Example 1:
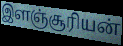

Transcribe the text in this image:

இளஞ்சூரியன்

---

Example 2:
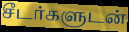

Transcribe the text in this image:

சீடர்களுடன்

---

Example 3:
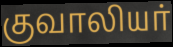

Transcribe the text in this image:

குவாலியர்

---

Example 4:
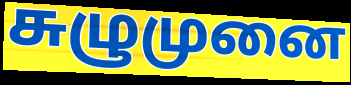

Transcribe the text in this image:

சுழுமுனை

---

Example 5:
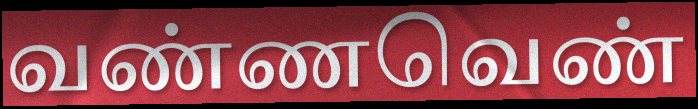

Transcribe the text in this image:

வண்ணவெண்